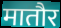
मातौर